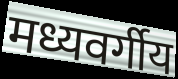
मध्यवर्गीय